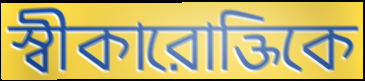
স্বীকারোক্তিকে